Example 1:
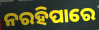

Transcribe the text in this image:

ନରହିପାରେ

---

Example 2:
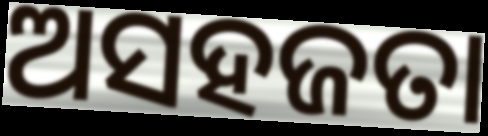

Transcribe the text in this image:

ଅସହଜତା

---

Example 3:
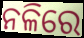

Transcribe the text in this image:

ନଳିରେ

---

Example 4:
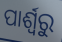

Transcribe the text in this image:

ପାର୍ଶ୍ଵରୁ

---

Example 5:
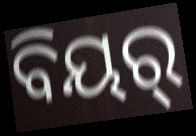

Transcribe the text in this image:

ବିୟର୍